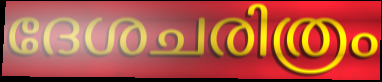
ദേശചരിത്രം